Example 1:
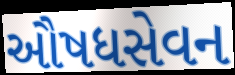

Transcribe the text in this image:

ઔષધસેવન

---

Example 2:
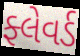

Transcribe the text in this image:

ફ્લેવર્ડ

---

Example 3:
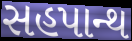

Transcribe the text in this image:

સહપાન્થ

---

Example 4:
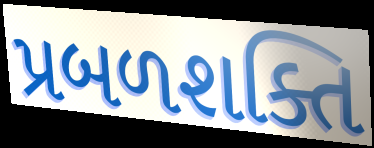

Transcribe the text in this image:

પ્રબળશક્તિ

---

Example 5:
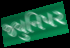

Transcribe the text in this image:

જ્યુનિપર